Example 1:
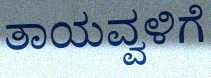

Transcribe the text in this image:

ತಾಯವ್ವಳಿಗೆ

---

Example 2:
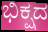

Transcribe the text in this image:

ಭಿಕ್ಷದ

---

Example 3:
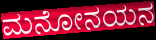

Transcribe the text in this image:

ಮನೋನಯನ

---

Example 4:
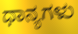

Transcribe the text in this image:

ಧಾನ್ಯಗಳು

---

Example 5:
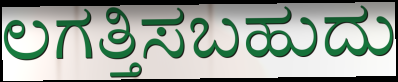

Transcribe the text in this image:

ಲಗತ್ತಿಸಬಹುದು